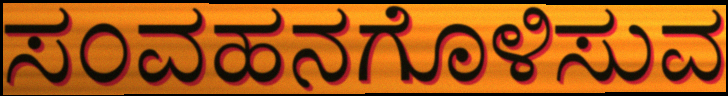
ಸಂವಹನಗೊಳಿಸುವ